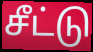
சீட்டு